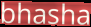
bhasha